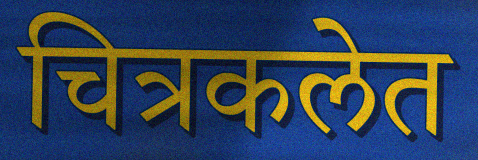
चित्रकलेत